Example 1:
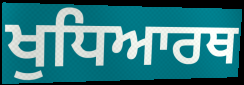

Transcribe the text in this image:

ਖੁਧਿਆਰਥ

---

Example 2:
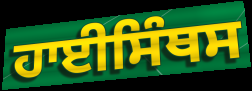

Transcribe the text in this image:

ਹਾਈਸਿੰਥਸ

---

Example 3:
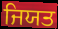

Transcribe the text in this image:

ਜਿਯਤ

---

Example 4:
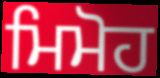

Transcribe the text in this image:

ਮਿਮੋਹ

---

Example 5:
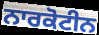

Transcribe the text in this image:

ਨਾਰਕੋਟੀਨ